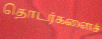
தொடர்களைச்